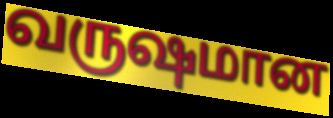
வருஷமான